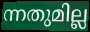
ന്നതുമില്ല